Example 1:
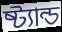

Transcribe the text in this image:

ষ্ট্যান্ড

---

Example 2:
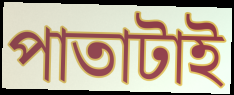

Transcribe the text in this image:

পাতাটাই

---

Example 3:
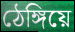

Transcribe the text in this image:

ঠেঙ্গিয়ে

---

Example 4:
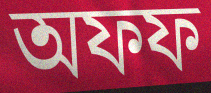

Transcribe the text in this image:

অফফ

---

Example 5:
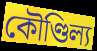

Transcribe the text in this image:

কৌণ্ডিল্য